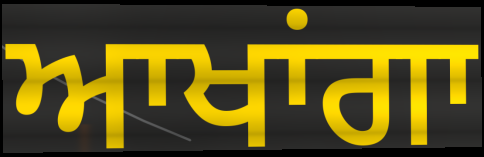
ਆਖਾਂਗਾ